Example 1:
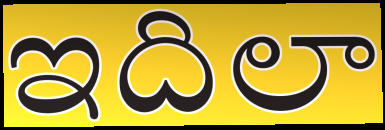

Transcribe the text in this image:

ఇదిలా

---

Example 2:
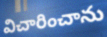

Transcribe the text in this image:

విచారించాను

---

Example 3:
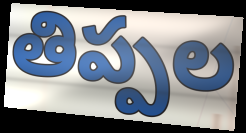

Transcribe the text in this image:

తిప్పల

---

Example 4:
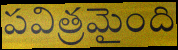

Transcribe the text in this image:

పవిత్రమైంది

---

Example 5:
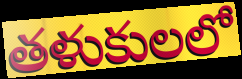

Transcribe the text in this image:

తళుకులలో